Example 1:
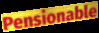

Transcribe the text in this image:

Pensionable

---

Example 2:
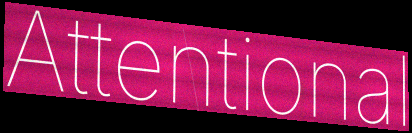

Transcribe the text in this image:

Attentional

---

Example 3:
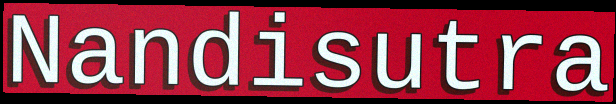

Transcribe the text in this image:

Nandisutra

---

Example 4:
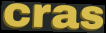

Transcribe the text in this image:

cras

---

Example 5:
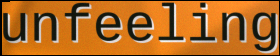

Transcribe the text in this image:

unfeeling